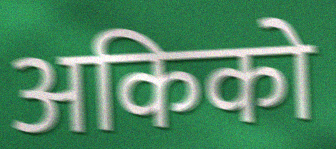
अकिको